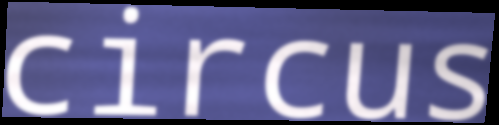
circus